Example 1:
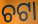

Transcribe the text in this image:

ଚଟା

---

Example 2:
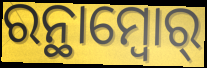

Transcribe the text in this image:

ରନ୍ଥାମ୍ବୋର୍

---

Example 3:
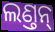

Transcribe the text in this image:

ଲଣ୍ତନ୍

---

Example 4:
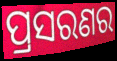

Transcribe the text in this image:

ପ୍ରସରଣର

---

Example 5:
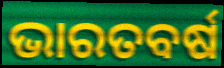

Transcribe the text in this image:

ଭାରତବର୍ଷ